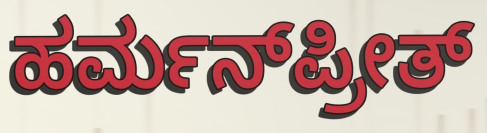
ಹರ್ಮನ್‌ಪ್ರೀತ್